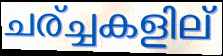
ചര്ച്ചകളില്